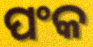
ପଂକ